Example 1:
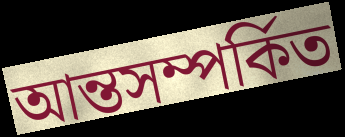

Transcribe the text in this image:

আন্তসম্পর্কিত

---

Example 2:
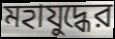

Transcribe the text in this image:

মহাযুদ্ধের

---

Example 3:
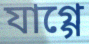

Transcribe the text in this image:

যাগ্গে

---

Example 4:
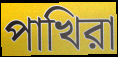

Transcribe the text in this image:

পাখিরা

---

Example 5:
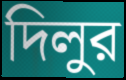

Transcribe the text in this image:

দিলুর